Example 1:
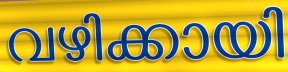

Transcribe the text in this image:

വഴിക്കായി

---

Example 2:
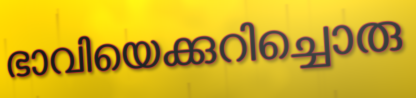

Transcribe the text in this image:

ഭാവിയെക്കുറിച്ചൊരു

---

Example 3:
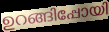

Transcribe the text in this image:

ഉറങ്ങിപ്പോയി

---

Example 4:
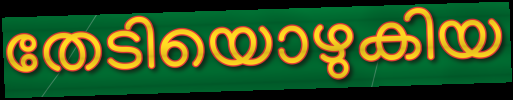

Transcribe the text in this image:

തേടിയൊഴുകിയ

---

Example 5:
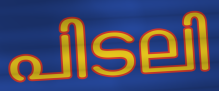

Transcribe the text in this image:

പിടലി